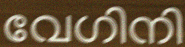
വേഗിനി